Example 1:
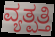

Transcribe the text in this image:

ವ್ಯತ್ಪತ್ತಿ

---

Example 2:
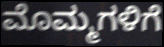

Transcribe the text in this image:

ಮೊಮ್ಮಗಳಿಗೆ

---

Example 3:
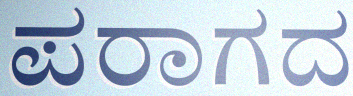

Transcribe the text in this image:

ಪರಾಗದ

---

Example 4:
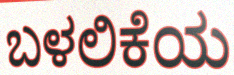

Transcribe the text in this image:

ಬಳಲಿಕೆಯ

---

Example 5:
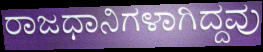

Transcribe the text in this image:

ರಾಜಧಾನಿಗಳಾಗಿದ್ದವು